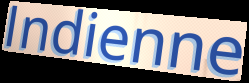
Indienne